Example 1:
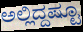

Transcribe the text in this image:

ಅಲ್ಲಿದ್ದಷ್ಟೂ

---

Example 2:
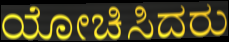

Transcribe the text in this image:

ಯೋಚಿಸಿದರು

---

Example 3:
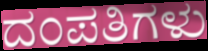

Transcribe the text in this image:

ದಂಪತಿಗಳು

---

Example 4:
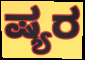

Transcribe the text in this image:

ಷ್ಯರ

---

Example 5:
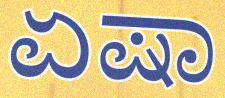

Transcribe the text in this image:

ಏಷಾ